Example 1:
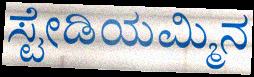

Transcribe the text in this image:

ಸ್ಟೇಡಿಯಮ್ಮಿನ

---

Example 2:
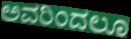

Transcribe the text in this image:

ಅವರಿಂದಲೂ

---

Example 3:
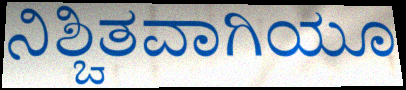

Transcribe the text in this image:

ನಿಶ್ಚಿತವಾಗಿಯೂ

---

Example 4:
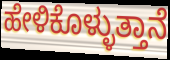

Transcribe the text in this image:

ಹೇಳಿಕೊಳ್ಳುತ್ತಾನೆ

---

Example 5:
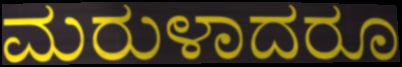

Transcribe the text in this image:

ಮರುಳಾದರೂ